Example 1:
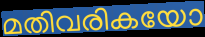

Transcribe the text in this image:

മതിവരികയോ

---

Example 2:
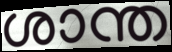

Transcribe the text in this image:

ശാന്ത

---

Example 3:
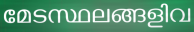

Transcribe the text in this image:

മേടസ്ഥലങ്ങളിവ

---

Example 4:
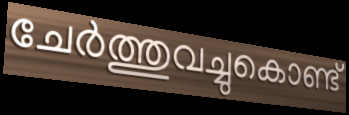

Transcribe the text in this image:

ചേർത്തുവച്ചുകൊണ്ട്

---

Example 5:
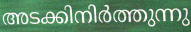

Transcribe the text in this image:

അടക്കിനിർത്തുന്നു